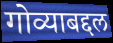
गोव्याबद्दल